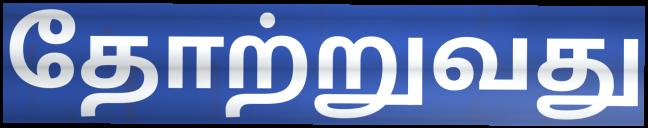
தோற்றுவது